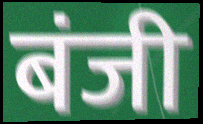
बंजी